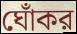
ঘোঁকর